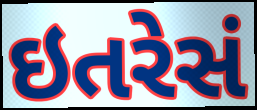
ઇતરેસં